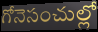
గోనెసంచుల్లో